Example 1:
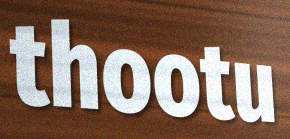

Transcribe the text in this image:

thootu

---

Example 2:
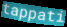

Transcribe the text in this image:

tappati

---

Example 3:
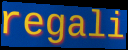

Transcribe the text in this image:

regali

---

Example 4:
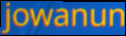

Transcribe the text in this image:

jowanun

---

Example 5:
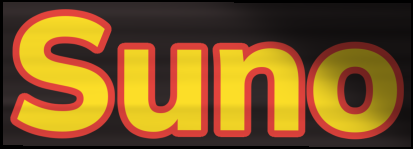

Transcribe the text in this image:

Suno